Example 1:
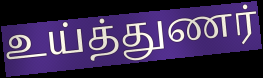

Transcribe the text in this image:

உய்த்துணர்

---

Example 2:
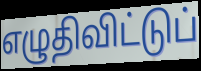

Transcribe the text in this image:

எழுதிவிட்டுப்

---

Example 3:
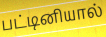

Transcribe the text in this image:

பட்டினியால்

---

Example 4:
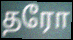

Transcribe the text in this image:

தரோ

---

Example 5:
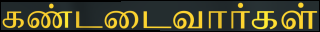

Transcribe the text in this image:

கண்டடைவார்கள்